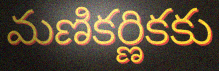
మణికర్ణికకు